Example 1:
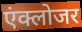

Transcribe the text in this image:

एंक्लोजर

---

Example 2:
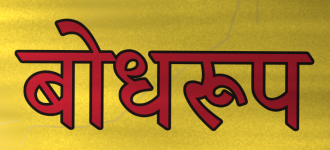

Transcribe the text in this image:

बोधरूप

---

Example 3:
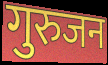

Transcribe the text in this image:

गुरुजन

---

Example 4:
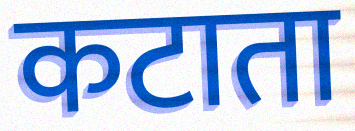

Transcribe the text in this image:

कटाता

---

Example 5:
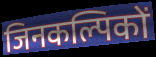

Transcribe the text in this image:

जिनकल्पिकों